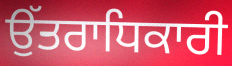
ਉੱਤਰਾਧਿਕਾਰੀ